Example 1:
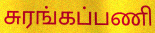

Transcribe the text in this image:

சுரங்கப்பணி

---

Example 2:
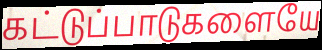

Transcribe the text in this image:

கட்டுப்பாடுகளையே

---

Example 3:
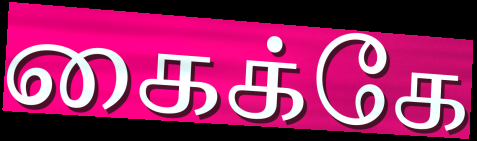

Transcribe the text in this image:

கைக்கே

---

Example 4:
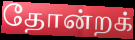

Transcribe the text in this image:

தோன்றக்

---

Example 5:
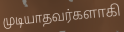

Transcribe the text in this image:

முடியாதவர்களாகி